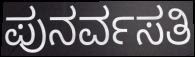
ಪುನರ್ವಸತಿ